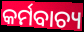
କର୍ମବାଚ୍ୟ